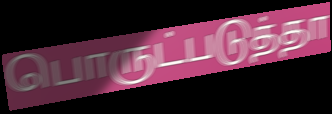
பொருட்படுத்தா